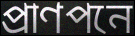
প্রাণপনে